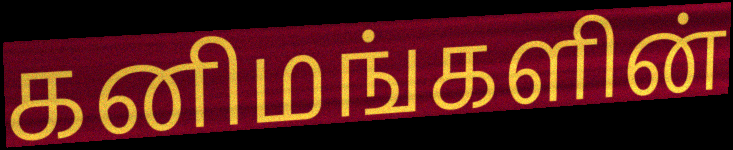
கனிமங்களின்